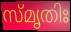
സ്മൃതിഃ